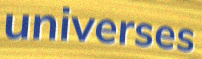
universes